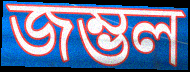
জম্ভল